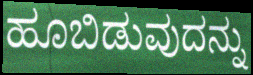
ಹೂಬಿಡುವುದನ್ನು